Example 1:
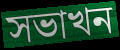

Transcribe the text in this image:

সভাখন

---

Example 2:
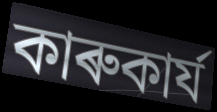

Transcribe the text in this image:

কাৰুকাৰ্য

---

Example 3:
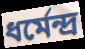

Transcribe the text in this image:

ধৰ্মেন্দ্ৰ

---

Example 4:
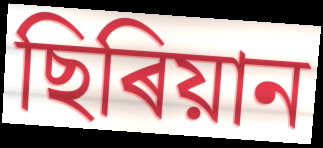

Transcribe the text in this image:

ছিৰিয়ান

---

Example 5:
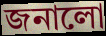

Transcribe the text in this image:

জনালো